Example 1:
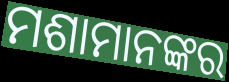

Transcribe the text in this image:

ମଶାମାନଙ୍କର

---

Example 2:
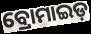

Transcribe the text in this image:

ବ୍ରୋମାଇଡ଼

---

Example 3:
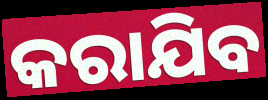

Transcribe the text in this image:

କରାଯିବ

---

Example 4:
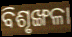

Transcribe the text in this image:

ବିଶୃଙ୍ଖଳା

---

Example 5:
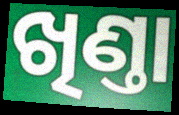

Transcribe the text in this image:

ଖିଣ୍ତା